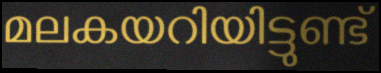
മലകയറിയിട്ടുണ്ട്